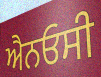
ਐਨਓਸੀ